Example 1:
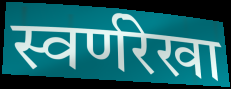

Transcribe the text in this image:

स्वर्णरेखा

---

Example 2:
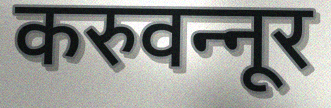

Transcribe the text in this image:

करुवन्नूर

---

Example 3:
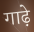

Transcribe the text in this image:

गाढ़े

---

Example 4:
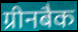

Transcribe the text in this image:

ग्रीनबैक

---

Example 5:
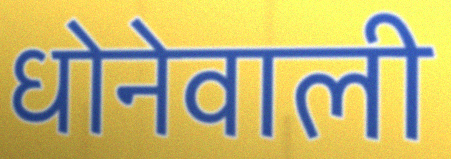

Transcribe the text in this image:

धोनेवाली